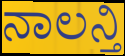
ನಾಲನ್ತಿ